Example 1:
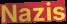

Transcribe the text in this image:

Nazis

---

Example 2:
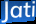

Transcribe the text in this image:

Jati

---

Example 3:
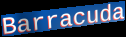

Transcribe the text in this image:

Barracuda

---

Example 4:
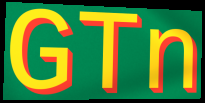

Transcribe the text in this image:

GTn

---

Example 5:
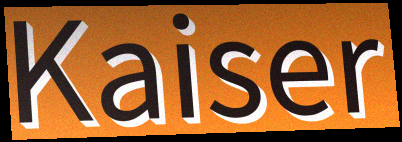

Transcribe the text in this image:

Kaiser